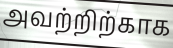
அவற்றிற்காக